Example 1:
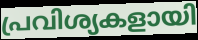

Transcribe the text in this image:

പ്രവിശ്യകളായി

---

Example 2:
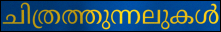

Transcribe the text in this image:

ചിത്രത്തുന്നലുകൾ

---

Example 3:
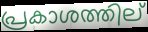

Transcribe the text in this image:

പ്രകാശത്തില്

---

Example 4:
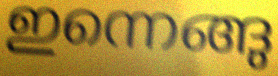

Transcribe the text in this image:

ഇന്നെങ്ങു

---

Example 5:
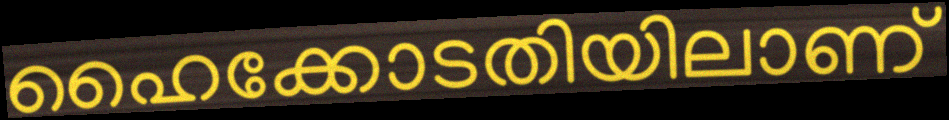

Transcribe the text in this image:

ഹൈക്കോടതിയിലാണ്